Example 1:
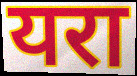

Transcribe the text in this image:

यरा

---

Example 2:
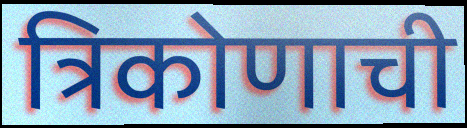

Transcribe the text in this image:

त्रिकोणाची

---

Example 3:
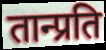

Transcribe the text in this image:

तान्प्रति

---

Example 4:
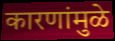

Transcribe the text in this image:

कारणांमुळे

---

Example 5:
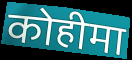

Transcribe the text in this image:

कोहीमा